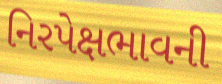
નિરપેક્ષભાવની